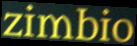
zimbio